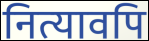
नित्यावपि